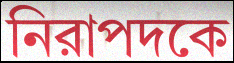
নিরাপদকে